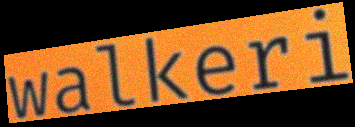
walkeri